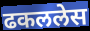
ढकललेस